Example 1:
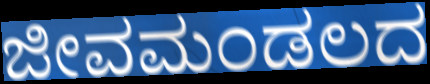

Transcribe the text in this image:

ಜೀವಮಂಡಲದ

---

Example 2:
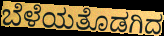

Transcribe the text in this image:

ಬೆಳೆಯತೊಡಗಿದ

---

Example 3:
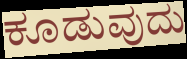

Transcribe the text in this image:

ಕೂಡುವುದು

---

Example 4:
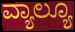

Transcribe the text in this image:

ವ್ಯಾಲ್ಯೂ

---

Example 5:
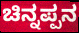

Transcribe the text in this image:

ಚಿನ್ನಪ್ಪನ